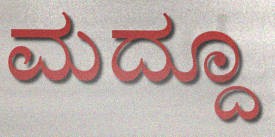
ಮದ್ದೂ